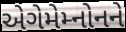
એગેમેમ્નોનને